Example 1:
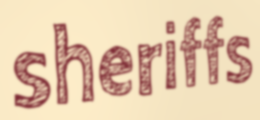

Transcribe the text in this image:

sheriffs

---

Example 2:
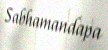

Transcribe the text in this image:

Sabhamandapa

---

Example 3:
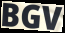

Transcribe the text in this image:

BGV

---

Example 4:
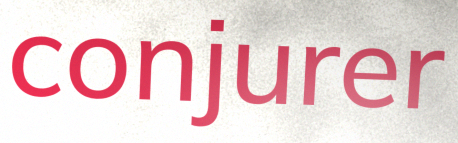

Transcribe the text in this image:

conjurer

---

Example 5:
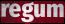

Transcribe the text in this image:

regum